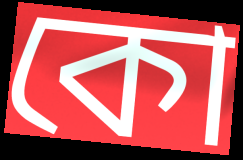
কো